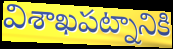
విశాఖపట్నానికి